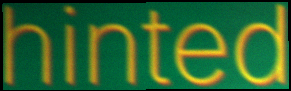
hinted